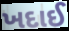
ખદાઈ